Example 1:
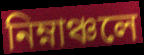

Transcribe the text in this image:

নিম্নাঞ্চলে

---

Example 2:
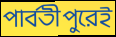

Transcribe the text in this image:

পার্বতীপুরেই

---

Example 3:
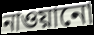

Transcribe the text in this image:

নাওয়ানো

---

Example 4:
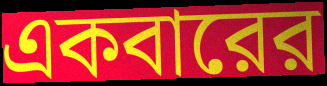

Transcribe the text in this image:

একবারের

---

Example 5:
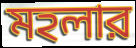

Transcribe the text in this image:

মহলার